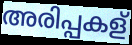
അരിപ്പകള്